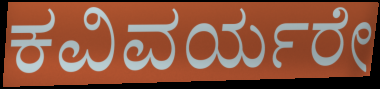
ಕವಿವರ್ಯರೇ